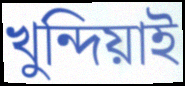
খুন্দিয়াই